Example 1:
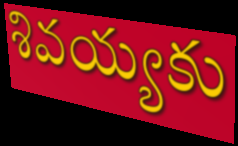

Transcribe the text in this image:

శివయ్యకు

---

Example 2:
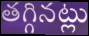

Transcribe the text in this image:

తగ్గినట్లు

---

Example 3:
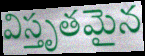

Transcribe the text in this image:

విస్తృతమైన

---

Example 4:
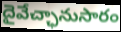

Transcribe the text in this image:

దైవేచ్ఛానుసారం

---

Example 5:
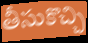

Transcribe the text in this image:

తీసుకొచ్చి